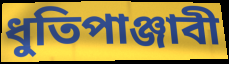
ধুতিপাঞ্জাবী